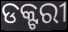
ଡକ୍ଟରୀ